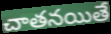
చాతనయితే